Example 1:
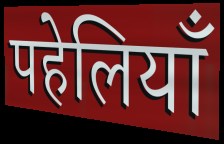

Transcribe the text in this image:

पहेलियाँ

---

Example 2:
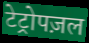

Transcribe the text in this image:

टेट्रोपज़ल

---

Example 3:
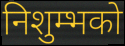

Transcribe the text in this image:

निशुम्भको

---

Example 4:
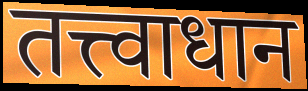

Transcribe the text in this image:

तत्त्वाधान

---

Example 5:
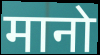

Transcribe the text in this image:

मानो